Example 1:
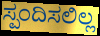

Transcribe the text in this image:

ಸ್ಪಂದಿಸಲಿಲ್ಲ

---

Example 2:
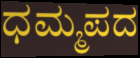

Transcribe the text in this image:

ಧಮ್ಮಪದ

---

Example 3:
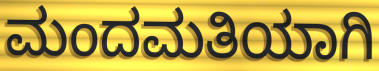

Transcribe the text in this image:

ಮಂದಮತಿಯಾಗಿ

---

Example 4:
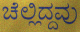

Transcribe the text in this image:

ಚೆಲ್ಲಿದ್ದವು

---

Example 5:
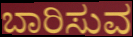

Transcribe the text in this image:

ಬಾರಿಸುವ